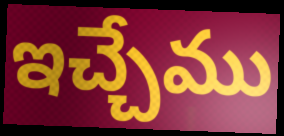
ఇచ్చేము